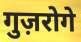
गुज़रोगे